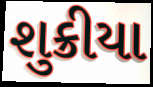
શુક્રીયા